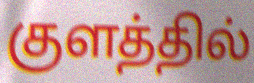
குளத்தில்